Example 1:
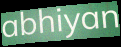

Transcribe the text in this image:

abhiyan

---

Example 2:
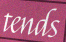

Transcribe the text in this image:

tends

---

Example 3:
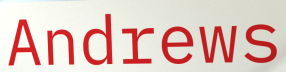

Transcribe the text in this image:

Andrews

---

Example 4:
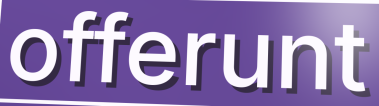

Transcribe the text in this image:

offerunt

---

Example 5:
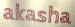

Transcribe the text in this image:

akasha